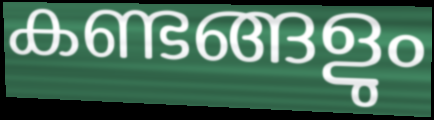
കണ്ടങ്ങളും